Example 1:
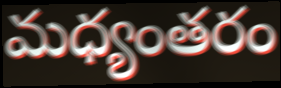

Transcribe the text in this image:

మధ్యంతరం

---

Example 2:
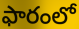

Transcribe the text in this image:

ఫారంలో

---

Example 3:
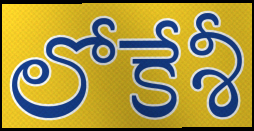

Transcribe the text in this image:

లోకేశీ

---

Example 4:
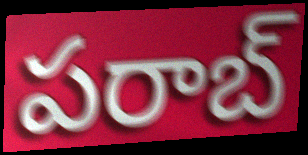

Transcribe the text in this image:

పరాబ్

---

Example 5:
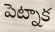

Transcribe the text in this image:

పెట్నాక